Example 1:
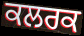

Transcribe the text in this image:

ਕਲਰਕ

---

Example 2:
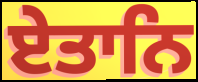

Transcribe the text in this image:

ਏਤਾਨਿ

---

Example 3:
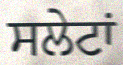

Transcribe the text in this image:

ਸਲੇਟਾਂ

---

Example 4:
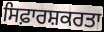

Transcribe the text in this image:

ਸਿਫ਼ਾਰਸ਼ਕਰਤਾ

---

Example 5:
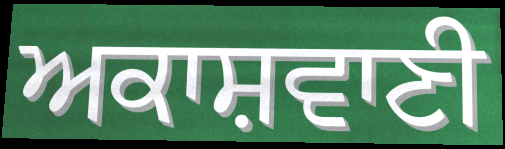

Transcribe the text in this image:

ਅਕਾਸ਼ਵਾਣੀ